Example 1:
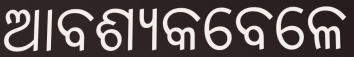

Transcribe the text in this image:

ଆବଶ୍ୟକବେଳେ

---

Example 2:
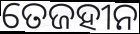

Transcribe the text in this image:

ତେଜହୀନ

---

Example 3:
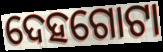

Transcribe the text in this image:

ଦେହଗୋଟା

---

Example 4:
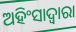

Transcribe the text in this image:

ଅହିଂସାଦ୍ୱାରା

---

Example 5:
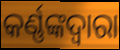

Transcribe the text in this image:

କର୍ଣ୍ଣଙ୍କଦ୍ୱାରା